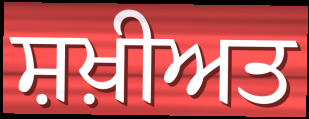
ਸ਼ਖ਼ੀਅਤ